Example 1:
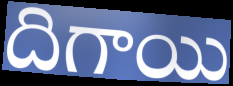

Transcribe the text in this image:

దిగాయి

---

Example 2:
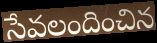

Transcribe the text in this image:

సేవలందించిన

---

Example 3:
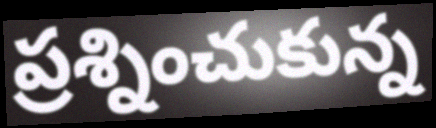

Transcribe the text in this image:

ప్రశ్నించుకున్న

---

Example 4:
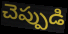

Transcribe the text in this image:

చెప్పుడి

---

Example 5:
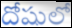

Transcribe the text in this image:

దోషులో